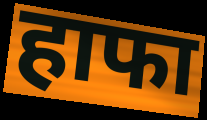
हाफा